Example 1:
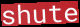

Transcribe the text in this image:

shute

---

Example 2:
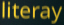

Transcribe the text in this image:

literay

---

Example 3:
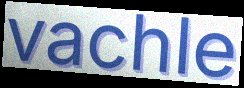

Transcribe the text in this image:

vachle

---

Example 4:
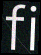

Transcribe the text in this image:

fi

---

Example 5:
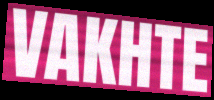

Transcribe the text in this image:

VAKHTE